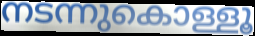
നടന്നുകൊള്ളൂ